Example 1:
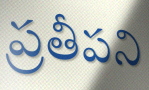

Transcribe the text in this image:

ప్రతీపని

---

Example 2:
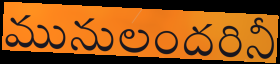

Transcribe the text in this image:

మునులందరినీ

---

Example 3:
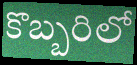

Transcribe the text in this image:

కొబ్బరిలో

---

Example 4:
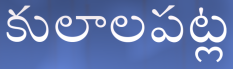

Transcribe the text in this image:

కులాలపట్ల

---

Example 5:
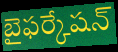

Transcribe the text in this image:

బైఫర్కేషన్